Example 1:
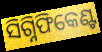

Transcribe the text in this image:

ସିଗ୍ନିଫିକେଣ୍ଟ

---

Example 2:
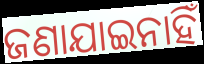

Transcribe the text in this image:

ଜଣାଯାଇନାହିଁ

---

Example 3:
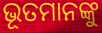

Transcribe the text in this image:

ଭୂତମାନଙ୍କୁ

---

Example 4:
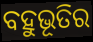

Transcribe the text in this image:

ବହୁଭୂତିର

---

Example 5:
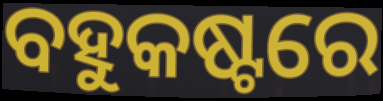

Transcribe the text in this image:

ବହୁକଷ୍ଟରେ